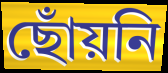
ছোঁয়নি